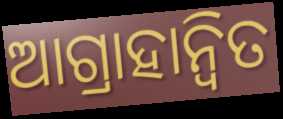
ଆଗ୍ରାହାନ୍ୱିତ